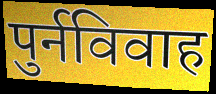
पुर्नविवाह